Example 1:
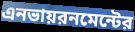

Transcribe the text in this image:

এনভায়রনমেন্টের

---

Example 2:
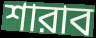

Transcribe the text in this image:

শারাব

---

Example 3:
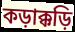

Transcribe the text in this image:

কড়াক্কড়ি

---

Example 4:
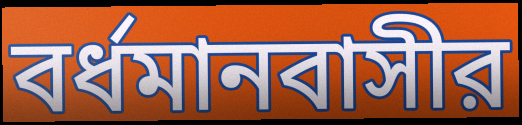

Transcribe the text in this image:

বর্ধমানবাসীর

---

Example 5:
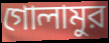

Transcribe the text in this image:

গোলামুর